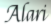
Alari